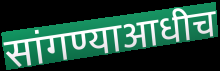
सांगण्याआधीच